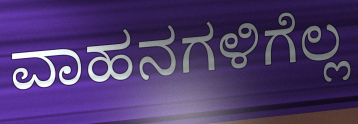
ವಾಹನಗಳಿಗೆಲ್ಲ